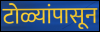
टोळ्यांपासून